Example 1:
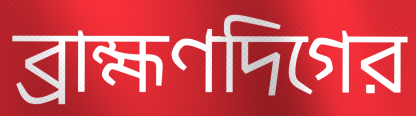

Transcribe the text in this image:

ব্রাহ্মণদিগের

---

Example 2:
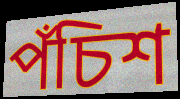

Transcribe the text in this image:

পঁচিশ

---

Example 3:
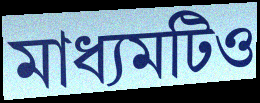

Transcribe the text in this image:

মাধ্যমটিও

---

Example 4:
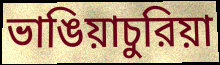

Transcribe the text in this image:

ভাঙিয়াচুরিয়া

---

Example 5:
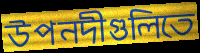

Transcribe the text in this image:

উপনদীগুলিতে